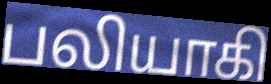
பலியாகி